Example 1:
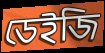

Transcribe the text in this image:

ডেইজি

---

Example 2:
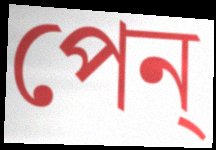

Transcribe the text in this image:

পেন্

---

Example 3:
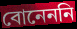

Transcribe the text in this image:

বোনেননি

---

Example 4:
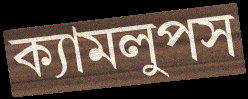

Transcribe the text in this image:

ক্যামলুপস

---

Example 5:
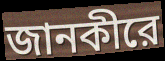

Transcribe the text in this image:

জানকীরে